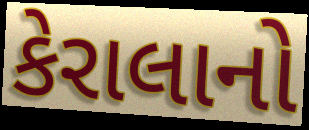
કેરાલાનો